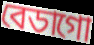
বেডাগো